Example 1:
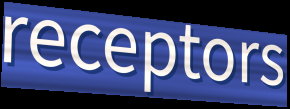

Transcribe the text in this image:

receptors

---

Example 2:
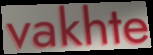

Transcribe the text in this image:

vakhte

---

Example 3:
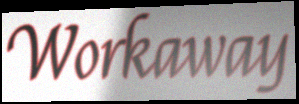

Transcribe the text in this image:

Workaway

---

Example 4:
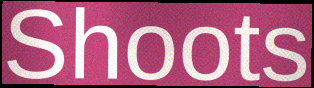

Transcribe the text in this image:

Shoots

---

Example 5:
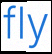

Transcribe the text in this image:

fly